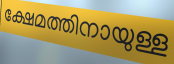
ക്ഷേമത്തിനായുള്ള